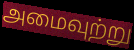
அமைவுற்று